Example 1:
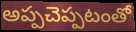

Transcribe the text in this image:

అప్పచెప్పటంతో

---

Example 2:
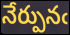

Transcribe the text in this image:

నేర్పునఁ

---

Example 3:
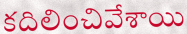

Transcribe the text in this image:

కదిలించివేశాయి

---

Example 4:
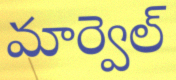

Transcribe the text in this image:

మార్వెల్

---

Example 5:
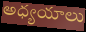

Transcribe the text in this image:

అధ్యయాలు